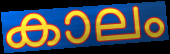
കാലം